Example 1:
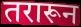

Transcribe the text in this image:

तरारून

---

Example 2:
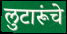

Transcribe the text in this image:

लुटारूंचे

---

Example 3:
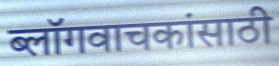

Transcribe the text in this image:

ब्लॉगवाचकांसाठी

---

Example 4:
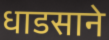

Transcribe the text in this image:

धाडसाने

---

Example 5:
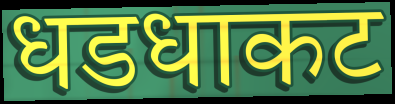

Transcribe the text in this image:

धडधाकट